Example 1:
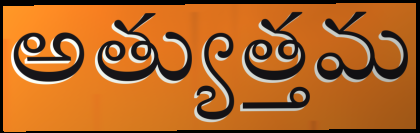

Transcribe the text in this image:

అత్యుత్తమ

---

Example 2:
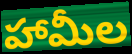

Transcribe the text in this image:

హామీల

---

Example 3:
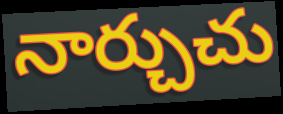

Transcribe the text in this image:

నార్చుచు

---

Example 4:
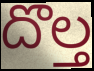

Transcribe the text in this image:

దొల్త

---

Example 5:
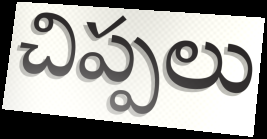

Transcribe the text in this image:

చిప్పలు